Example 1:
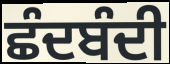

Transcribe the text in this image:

ਛੰਦਬੰਦੀ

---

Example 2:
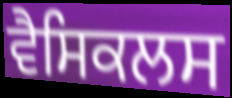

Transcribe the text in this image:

ਵੈਸਿਕਲਸ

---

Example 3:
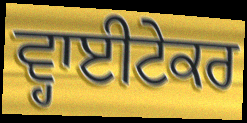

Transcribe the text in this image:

ਵ੍ਹਾਈਟੇਕਰ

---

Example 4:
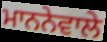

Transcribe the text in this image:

ਮਾਨਨੇਵਾਲੇ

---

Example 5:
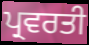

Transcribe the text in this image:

ਪ੍ਰਵਰਤੀ